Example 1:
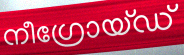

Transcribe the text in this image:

നീഗ്രോയ്ഡ്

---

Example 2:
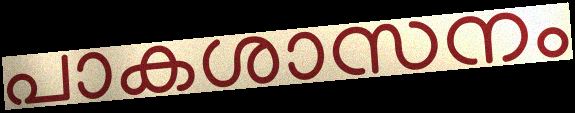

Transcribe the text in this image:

പാകശാസനം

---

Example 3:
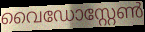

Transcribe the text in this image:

വൈഡോസ്റ്റേൺ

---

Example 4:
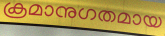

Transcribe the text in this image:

ക്രമാനുഗതമായ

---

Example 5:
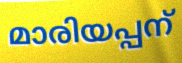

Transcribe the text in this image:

മാരിയപ്പന്